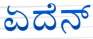
ಏದೆನ್